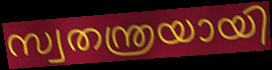
സ്വതന്ത്രയായി